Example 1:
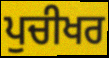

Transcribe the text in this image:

ਪੁਚੀਖਰ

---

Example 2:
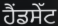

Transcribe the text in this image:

ਹੈਂਡਸੇੱਟ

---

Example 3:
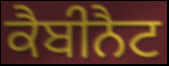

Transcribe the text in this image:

ਕੈਬੀਨੈਟ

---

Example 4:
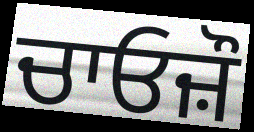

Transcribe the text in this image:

ਚਾਓਜ਼ੌ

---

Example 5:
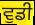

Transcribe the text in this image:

ਵੁਡੀ